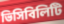
ভিসিবিলিটি